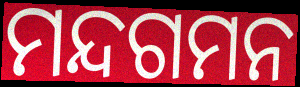
ମନ୍ଦଗମନ